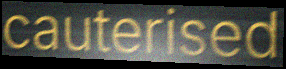
cauterised